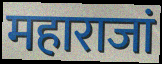
महाराजां